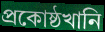
প্রকোষ্ঠখানি